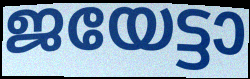
ജയേട്ടാ